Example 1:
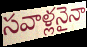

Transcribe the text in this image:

సవాళ్లనైనా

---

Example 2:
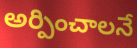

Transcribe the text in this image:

అర్పించాలనే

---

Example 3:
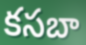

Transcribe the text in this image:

కసబా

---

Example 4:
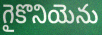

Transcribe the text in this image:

గైకొనియెను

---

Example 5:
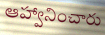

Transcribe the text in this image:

ఆహ్వానించారు